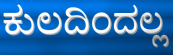
ಕುಲದಿಂದಲ್ಲ